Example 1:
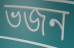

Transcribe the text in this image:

ভজন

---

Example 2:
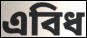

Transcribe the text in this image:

এবিধ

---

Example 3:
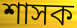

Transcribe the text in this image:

শাসক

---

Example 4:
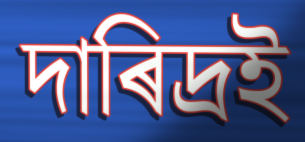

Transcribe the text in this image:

দাৰিদ্ৰই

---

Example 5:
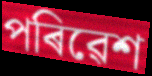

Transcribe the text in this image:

পৰিৱেশ